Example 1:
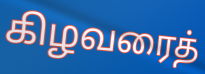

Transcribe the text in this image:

கிழவரைத்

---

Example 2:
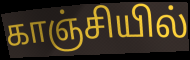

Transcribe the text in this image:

காஞ்சியில்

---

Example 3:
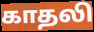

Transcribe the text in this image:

காதலி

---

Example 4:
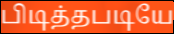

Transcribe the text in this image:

பிடித்தபடியே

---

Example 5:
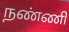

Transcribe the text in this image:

நண்ணி